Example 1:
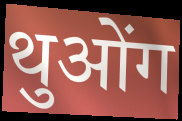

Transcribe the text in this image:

थुओंग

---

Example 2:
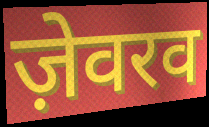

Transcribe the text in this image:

ज़ेवरव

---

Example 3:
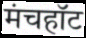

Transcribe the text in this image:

मंचहॉट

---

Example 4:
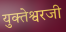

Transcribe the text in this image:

युक्तेश्वरजी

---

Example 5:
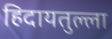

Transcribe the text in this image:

हिदायतुल्ला